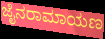
ಜೈನರಾಮಾಯಣ